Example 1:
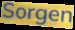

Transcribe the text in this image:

Sorgen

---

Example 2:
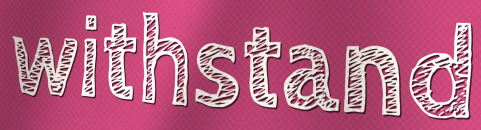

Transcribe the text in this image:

withstand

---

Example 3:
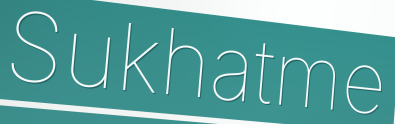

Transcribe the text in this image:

Sukhatme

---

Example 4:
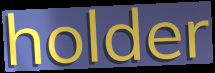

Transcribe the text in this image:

holder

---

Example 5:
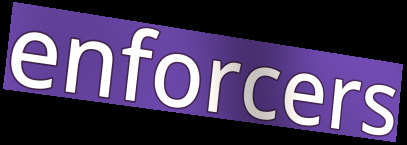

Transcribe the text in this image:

enforcers